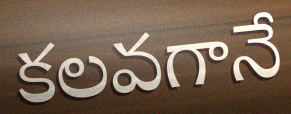
కలవగానే